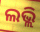
ଲଭ୍ଲି